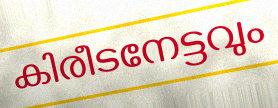
കിരീടനേട്ടവും